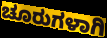
ಚೂರುಗಳಾಗಿ